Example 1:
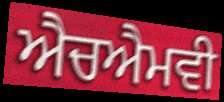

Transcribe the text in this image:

ਐਚਐਮਵੀ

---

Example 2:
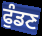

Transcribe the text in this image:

ਫੁੰਡਣ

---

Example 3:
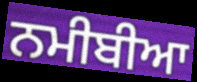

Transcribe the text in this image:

ਨਮੀਬੀਆ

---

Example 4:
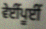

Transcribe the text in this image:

ਵੇਈਂਪੂਈਂ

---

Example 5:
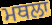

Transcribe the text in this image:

ਮਥਲਾ